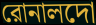
রোনালদো